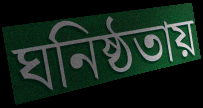
ঘনিষ্ঠতায়